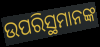
ଉପରିସ୍ଥମାନଙ୍କ